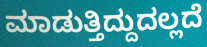
ಮಾಡುತ್ತಿದ್ದುದಲ್ಲದೆ